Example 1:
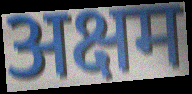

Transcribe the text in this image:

अक्षम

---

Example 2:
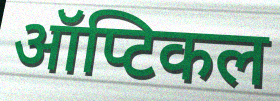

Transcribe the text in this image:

ऑप्टिकल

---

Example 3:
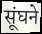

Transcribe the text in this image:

सूंघने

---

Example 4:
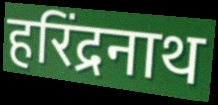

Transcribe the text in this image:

हरिंद्रनाथ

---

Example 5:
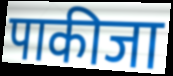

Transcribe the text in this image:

पाकीजा